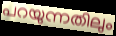
പറയുന്നതിലും